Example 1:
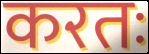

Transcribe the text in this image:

करतः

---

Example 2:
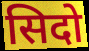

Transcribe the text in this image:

सिदो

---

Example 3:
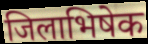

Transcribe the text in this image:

जिलाभिषेक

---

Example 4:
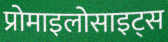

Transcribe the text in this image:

प्रोमाइलोसाइट्स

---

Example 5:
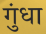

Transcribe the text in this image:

गुंधा